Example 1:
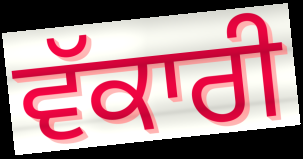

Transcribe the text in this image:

ਵੱਕਾਰੀ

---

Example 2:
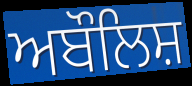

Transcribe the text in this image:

ਅਬੌਲਿਸ਼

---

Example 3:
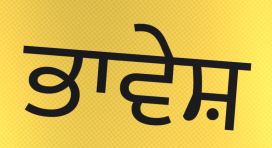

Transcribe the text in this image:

ਭਾਵੇਸ਼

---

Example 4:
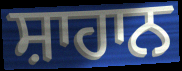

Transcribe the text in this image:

ਸ਼ਾਹਾਨ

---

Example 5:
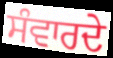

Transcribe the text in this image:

ਸੰਵਾਰਦੇ